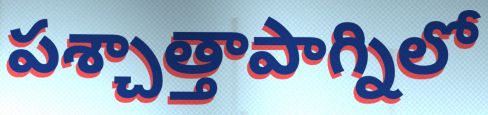
పశ్చాత్తాపాగ్నిలో